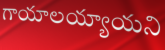
గాయాలయ్యాయని